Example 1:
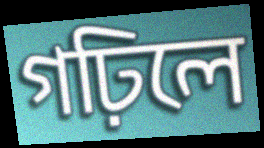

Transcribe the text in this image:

গঢ়িলে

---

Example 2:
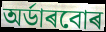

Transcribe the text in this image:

অৰ্ডাৰবোৰ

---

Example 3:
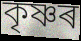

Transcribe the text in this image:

কৃষ্ণৰ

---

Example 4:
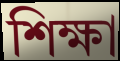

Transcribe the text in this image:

শিক্ষা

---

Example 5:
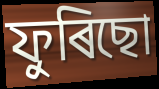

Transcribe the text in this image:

ফুৰিছো